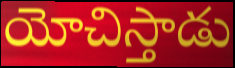
యోచిస్తాడు